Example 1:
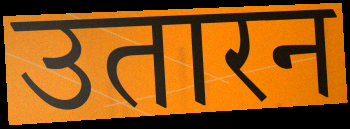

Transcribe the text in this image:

उतारन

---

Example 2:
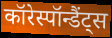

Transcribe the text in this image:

कॉरेस्पॉन्डैंट्स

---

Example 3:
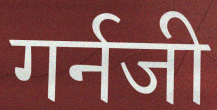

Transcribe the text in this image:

गर्नजी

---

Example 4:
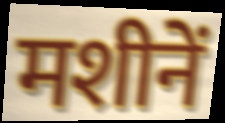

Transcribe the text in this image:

मशीनें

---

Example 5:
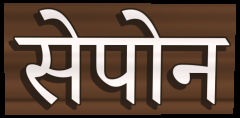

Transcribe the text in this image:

सेपोन